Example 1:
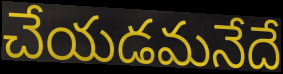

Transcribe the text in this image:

చేయడమనేదే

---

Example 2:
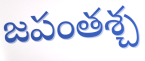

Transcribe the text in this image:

జపంతశ్చ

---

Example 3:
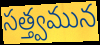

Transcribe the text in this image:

సత్త్వమున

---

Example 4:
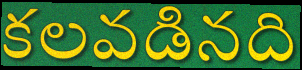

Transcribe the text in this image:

కలవడినది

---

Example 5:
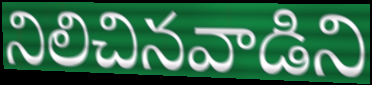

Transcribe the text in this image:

నిలిచినవాడిని